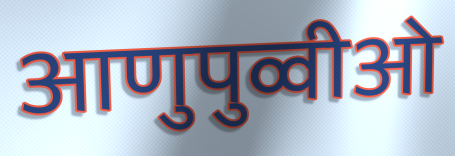
आणुपुव्वीओ